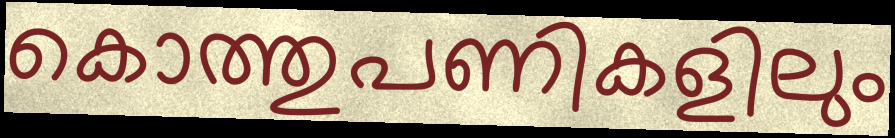
കൊത്തുപണികളിലും